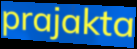
prajakta